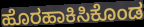
ಹೊರಹಾಕಿಸಿಕೊಂಡ